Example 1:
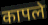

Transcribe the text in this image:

कापले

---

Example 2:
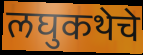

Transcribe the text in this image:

लघुकथेचे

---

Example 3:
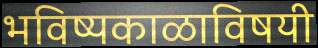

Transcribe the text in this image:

भविष्यकाळाविषयी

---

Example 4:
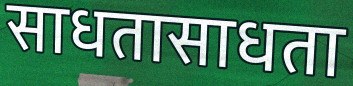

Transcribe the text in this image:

साधतासाधता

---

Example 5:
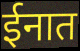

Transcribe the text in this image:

ईनात